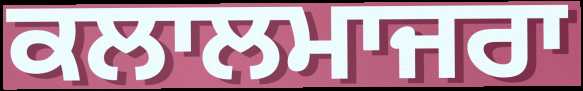
ਕਲਾਲਮਾਜਰਾ